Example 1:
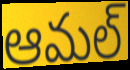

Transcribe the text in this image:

ఆమల్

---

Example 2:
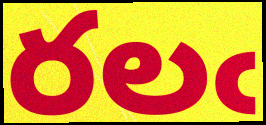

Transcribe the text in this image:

రలఁ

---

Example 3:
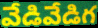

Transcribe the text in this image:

వేడివేడిగ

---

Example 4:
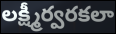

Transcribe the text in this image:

లక్ష్మీర్వరకలా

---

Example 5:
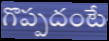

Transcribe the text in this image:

గొప్పదంటే